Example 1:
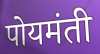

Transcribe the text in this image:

पोयमंती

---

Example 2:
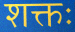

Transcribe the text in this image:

शक्तः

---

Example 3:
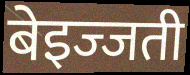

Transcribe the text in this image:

बेइज्‍जती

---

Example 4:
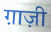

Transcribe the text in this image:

ग़ाज़ी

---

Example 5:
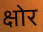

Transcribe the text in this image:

क्षोर